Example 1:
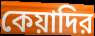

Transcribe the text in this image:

কেয়াদির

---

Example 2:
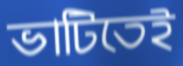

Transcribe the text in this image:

ভাটিতেই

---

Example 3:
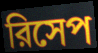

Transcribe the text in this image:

রিসেপ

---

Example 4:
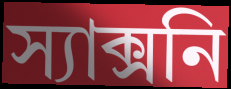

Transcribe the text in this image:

স্যাক্সনি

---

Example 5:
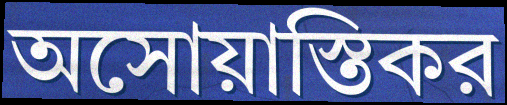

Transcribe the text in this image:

অসোয়াস্তিকর